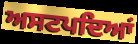
ਅਸਟਪਦਿਆਂ